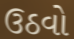
ઉઠવો